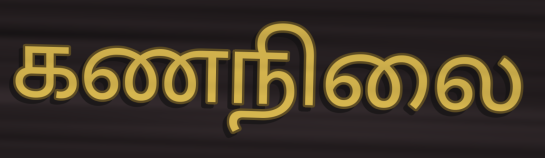
கணநிலை